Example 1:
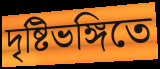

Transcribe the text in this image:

দৃষ্টিভঙ্গিতে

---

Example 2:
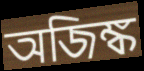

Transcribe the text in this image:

অজিঙ্ক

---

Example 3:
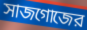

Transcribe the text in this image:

সাজগোজের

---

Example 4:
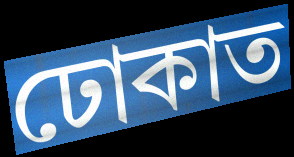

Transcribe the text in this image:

ঢোকাত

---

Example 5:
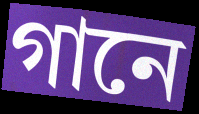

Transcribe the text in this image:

গানে